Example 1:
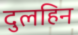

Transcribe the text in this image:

दुलहिन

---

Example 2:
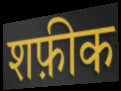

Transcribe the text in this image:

शफ़ीक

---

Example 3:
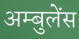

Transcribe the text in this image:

अम्बुलेंस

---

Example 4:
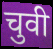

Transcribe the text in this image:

चुवी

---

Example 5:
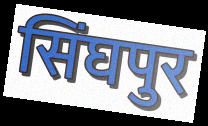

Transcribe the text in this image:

सिंघपुर